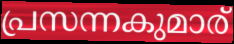
പ്രസന്നകുമാര്